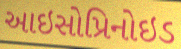
આઇસોપ્રિનોઇડ